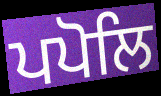
ਪਪੋਲਿ